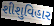
શીશુવિહાર